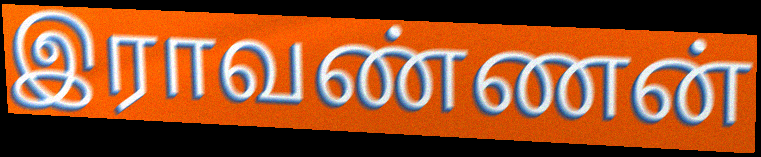
இராவண்ணன்